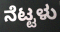
ನೆಟ್ಟಳು